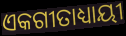
ଏକଗୀତାଧ୍ୟାୟୀ